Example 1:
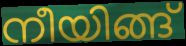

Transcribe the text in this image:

നീയിങ്ങ്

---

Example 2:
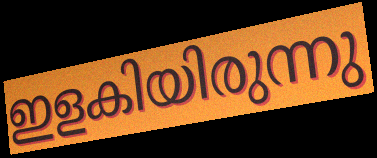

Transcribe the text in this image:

ഇളകിയിരുന്നു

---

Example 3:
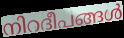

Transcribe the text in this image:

നിറദീപങ്ങൾ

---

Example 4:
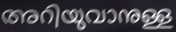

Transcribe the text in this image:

അറിയുവാനുള്ള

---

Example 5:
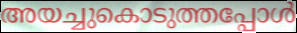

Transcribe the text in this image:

അയച്ചുകൊടുത്തപ്പോൾ